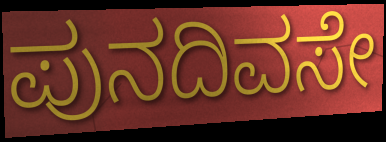
ಪುನದಿವಸೇ